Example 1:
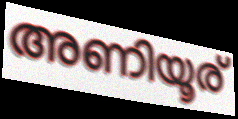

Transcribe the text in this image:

അണിയൂര്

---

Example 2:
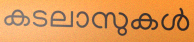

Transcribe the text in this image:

കടലാസുകൾ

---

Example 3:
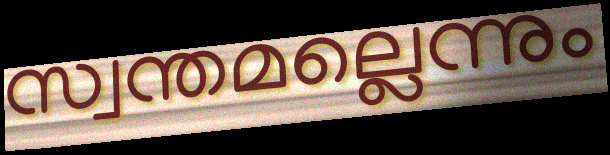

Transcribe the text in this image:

സ്വന്തമല്ലെന്നും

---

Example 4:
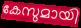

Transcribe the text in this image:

കേസുമായി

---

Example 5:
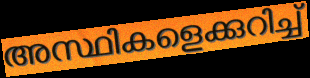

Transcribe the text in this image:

അസ്ഥികളെക്കുറിച്ച്